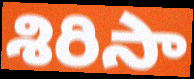
శిరిసా